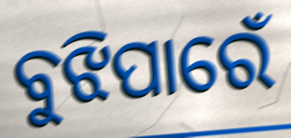
ବୁଝିପାରେଁ